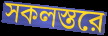
সকলস্তরে